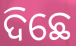
ଦିଛେ